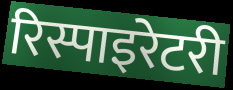
रिस्पाइरेटरी